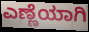
ಎಣ್ಣೆಯಾಗಿ